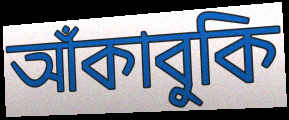
আঁকাবুকি